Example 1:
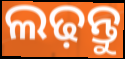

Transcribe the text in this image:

ଲଢ଼ନ୍ତୁ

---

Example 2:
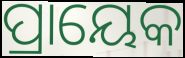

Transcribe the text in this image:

ପ୍ରାୟେକ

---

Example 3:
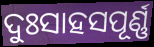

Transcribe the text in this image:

ଦୁଃସାହସପୂର୍ଣ୍ଣ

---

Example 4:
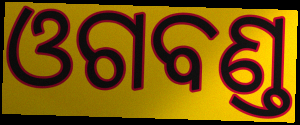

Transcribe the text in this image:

ଓଗବଣ୍ଡ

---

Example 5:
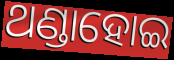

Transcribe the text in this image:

ଥଣ୍ଡାହୋଇ